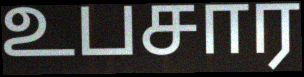
உபசார